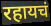
रहायचं